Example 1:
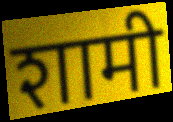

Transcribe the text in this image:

शामी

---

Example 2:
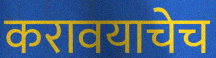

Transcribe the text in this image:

करावयाचेच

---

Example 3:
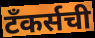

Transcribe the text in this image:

टँकर्सची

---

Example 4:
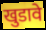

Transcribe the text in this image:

खुडावे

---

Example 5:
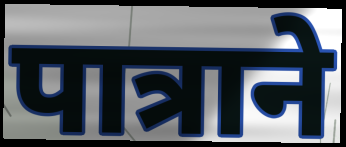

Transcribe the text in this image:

पात्राने